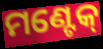
ମଣ୍ଟେକ୍